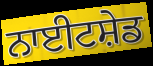
ਨਾਈਟਸ਼ੇਡ